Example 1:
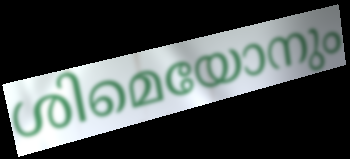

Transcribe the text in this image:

ശിമെയോനും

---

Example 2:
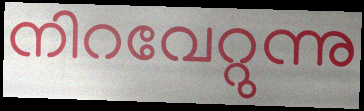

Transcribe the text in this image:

നിറവേറ്റുന്നു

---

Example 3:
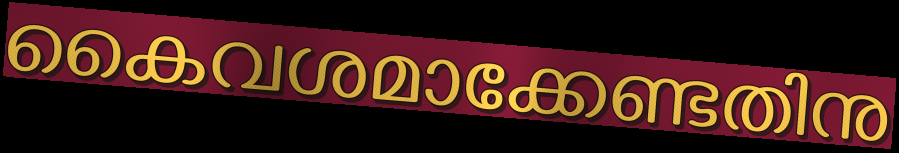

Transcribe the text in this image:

കൈവശമാക്കേണ്ടതിനു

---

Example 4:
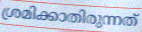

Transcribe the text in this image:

ശ്രമിക്കാതിരുന്നത്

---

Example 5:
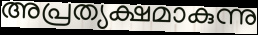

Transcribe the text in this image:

അപ്രത്യക്ഷമാകുന്നു